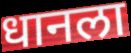
धानला